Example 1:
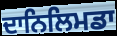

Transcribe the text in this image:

ਦਾਨਿਲਿਮਡਾ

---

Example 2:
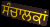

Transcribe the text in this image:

ਸੰਚਾਲਕਾਂ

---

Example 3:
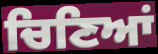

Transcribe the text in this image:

ਚਿਣਿਆਂ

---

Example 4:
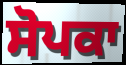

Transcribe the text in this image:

ਸੋਪਕਾ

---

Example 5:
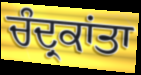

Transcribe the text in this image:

ਚੰਦ੍ਰਕਾਂਤਾ